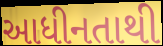
આધીનતાથી